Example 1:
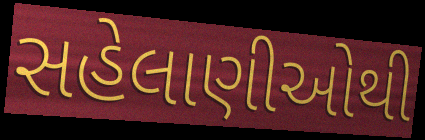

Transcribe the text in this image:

સહેલાણીઓથી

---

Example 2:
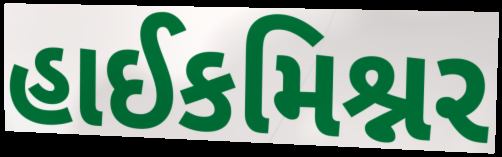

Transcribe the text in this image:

હાઈકમિશ્નર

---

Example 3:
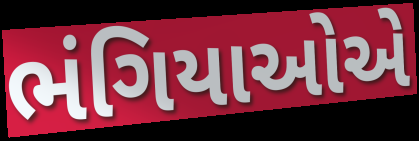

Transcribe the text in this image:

ભંગિયાઓએ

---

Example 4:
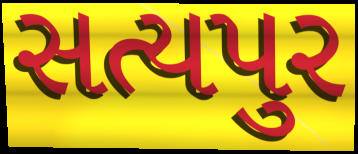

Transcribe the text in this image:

સત્યપુર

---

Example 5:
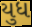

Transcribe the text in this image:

યુધ